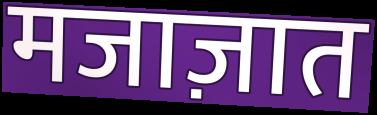
मजाज़ात